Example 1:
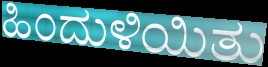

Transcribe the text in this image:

ಹಿಂದುಳಿಯಿತು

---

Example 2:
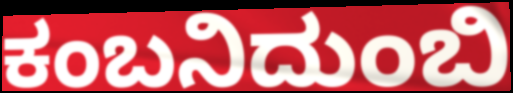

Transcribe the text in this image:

ಕಂಬನಿದುಂಬಿ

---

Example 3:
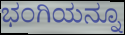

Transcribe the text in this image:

ಭಂಗಿಯನ್ನೂ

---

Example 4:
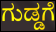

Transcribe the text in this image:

ಗುಡ್ಡಗೆ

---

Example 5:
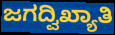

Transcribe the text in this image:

ಜಗದ್ವಿಖ್ಯಾತಿ